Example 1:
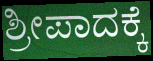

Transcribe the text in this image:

ಶ್ರೀಪಾದಕ್ಕೆ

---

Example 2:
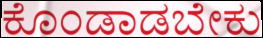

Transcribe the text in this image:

ಕೊಂಡಾಡಬೇಕು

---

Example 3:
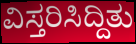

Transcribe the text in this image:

ವಿಸ್ತರಿಸಿದ್ದಿತು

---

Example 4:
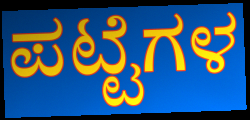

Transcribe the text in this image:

ಪಟ್ಟೆಗಳ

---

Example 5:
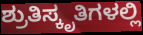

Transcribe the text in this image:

ಶ್ರುತಿಸ್ಕೃತಿಗಳಲ್ಲಿ